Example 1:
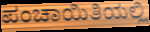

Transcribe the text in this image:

ಪಂಚಾಯಿತಿಯಲ್ಲಿ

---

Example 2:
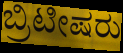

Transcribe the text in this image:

ಬ್ರಿಟೀಷರು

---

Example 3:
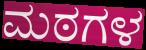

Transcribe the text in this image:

ಮಠಗಳ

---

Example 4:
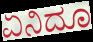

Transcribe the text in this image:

ಏನಿದೂ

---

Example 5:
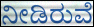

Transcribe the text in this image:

ನೀಡಿರುವೆ